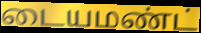
டையமண்ட்